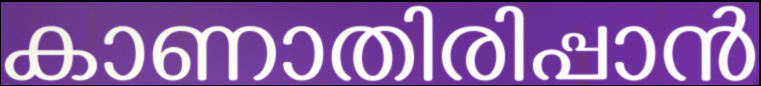
കാണാതിരിപ്പാൻ